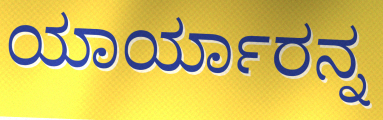
ಯಾರ್ಯಾರನ್ನ